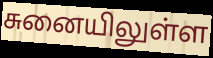
சுனையிலுள்ள